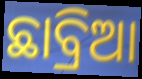
ଛାବ୍ରିଆ